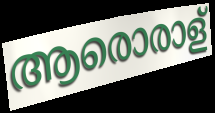
ആരൊരാള്